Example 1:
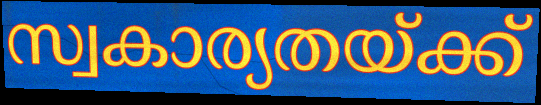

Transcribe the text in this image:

സ്വകാര്യതയ്ക്ക്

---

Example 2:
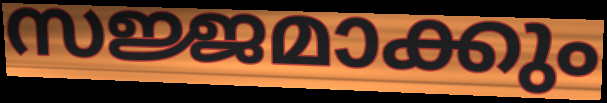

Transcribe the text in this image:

സജ്ജമാക്കും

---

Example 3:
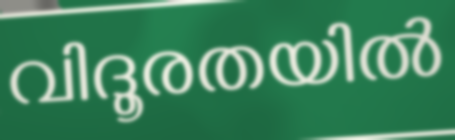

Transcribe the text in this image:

വിദൂരതയിൽ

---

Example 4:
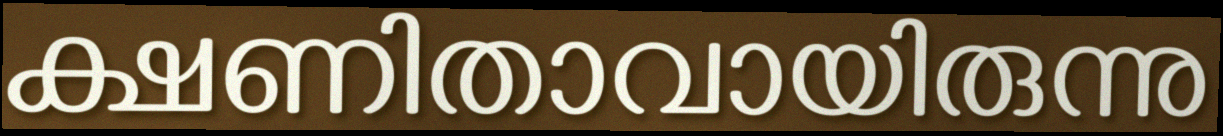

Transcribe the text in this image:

ക്ഷണിതാവായിരുന്നു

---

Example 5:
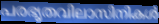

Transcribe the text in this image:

പരഭൃതവിലാസിനികൾ